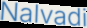
Nalvadi